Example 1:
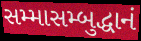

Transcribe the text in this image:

સમ્માસમ્બુદ્ધાનં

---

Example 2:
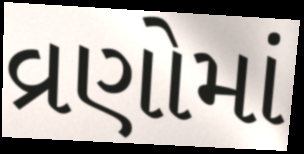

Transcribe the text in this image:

વ્રણોમાં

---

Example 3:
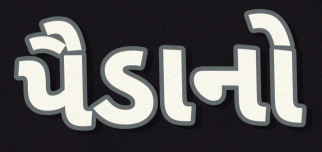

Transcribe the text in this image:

પૈડાનો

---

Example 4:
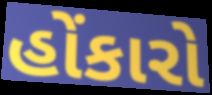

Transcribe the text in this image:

હોંકારો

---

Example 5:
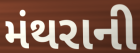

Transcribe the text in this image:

મંથરાની